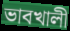
ভাবখালী